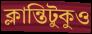
ক্লান্তিটুকুও